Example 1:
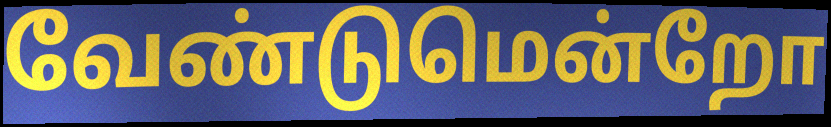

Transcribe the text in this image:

வேண்டுமென்றோ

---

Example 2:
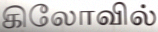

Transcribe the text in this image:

கிலோவில்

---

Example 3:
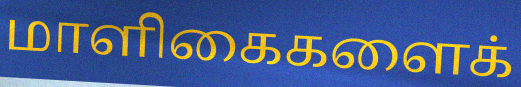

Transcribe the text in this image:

மாளிகைகளைக்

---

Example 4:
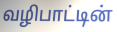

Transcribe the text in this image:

வழிபாட்டின்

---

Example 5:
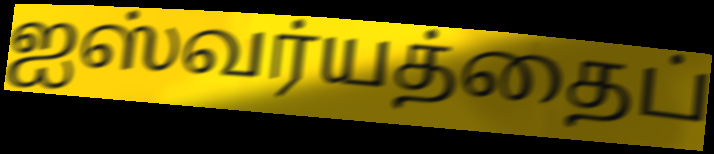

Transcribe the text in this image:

ஐஸ்வர்யத்தைப்